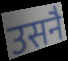
उसनै